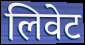
लिवेट